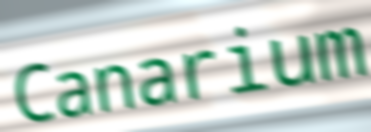
Canarium